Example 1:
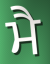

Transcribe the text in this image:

ਮੈ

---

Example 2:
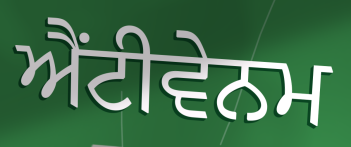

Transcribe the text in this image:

ਐਂਟੀਵੇਨਮ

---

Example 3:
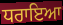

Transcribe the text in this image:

ਧਰਾਇਆ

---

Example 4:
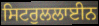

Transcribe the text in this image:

ਸਿਟਰੁਲਲਾਈਨ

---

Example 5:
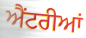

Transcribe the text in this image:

ਐਂਟਰੀਆਂ